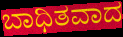
ಬಾಧಿತವಾದ